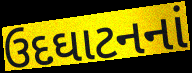
ઉદઘાટનનાં